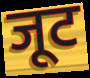
जूट